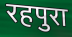
रहपुरा